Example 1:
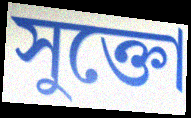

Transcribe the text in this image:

সুক্তো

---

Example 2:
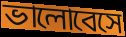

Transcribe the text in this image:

ভালোবেসে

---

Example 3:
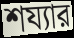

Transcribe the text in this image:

শয্যার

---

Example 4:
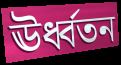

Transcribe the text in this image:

ঊর্ধ্বতন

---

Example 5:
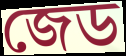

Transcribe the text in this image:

জেড